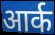
आर्क